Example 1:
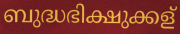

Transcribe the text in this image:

ബുദ്ധഭിക്ഷുക്കള്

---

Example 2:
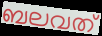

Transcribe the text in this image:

ബലവത്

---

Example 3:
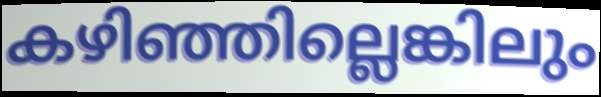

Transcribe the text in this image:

കഴിഞ്ഞില്ലെങ്കിലും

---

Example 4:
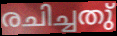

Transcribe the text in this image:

രചിച്ചതു്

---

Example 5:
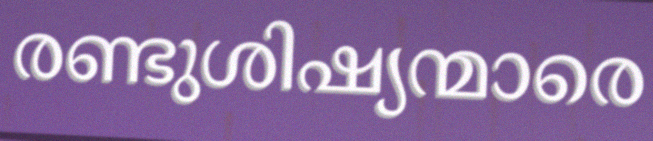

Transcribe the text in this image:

രണ്ടുശിഷ്യന്മാരെ